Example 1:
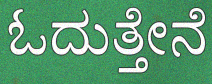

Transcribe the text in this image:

ಓದುತ್ತೇನೆ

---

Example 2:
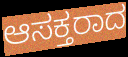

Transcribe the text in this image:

ಆಸಕ್ತರಾದ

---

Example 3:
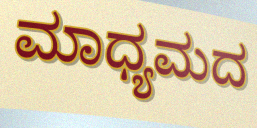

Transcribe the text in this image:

ಮಾಧ್ಯಮದ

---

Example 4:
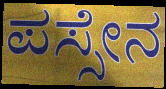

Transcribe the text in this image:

ಪಸ್ಸೇನ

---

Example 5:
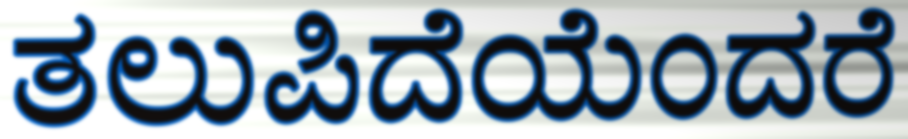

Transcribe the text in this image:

ತಲುಪಿದೆಯೆಂದರೆ